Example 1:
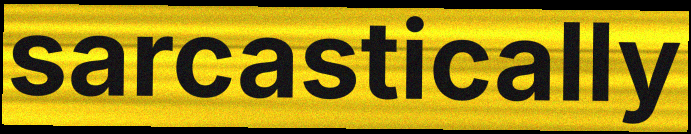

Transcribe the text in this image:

sarcastically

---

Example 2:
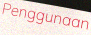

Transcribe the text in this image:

Penggunaan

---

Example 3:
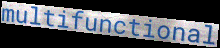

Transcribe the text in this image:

multifunctional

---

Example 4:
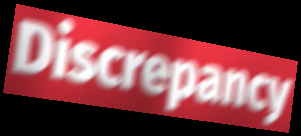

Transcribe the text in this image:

Discrepancy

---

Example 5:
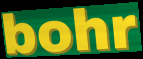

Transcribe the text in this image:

bohr